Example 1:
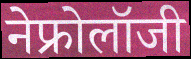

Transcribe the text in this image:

नेफ्रोलॉजी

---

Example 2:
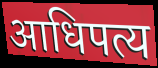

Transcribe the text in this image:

आधिपत्य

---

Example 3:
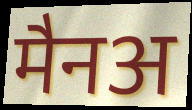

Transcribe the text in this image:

मैनअ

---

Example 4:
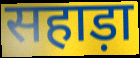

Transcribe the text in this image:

सहाड़ा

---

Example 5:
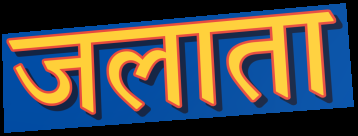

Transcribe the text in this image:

जलाता